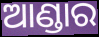
ଆଣ୍ଡାର